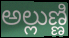
అల్లుణ్ణి